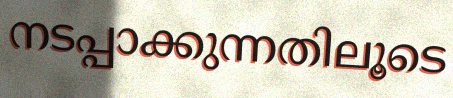
നടപ്പാക്കുന്നതിലൂടെ